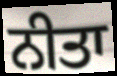
ਨੀਤਾ